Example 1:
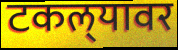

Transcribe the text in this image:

टकल्यावर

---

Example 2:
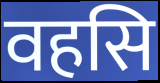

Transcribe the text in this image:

वहसि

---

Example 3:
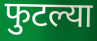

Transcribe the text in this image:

फुटल्या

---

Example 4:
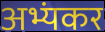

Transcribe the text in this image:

अभ्यंकर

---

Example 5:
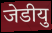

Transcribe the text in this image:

जेडीयु